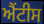
ਐਂਟੀਸ